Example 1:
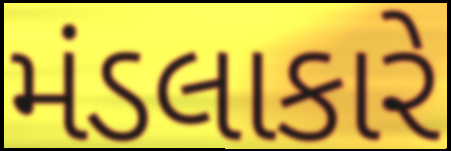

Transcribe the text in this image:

મંડલાકારે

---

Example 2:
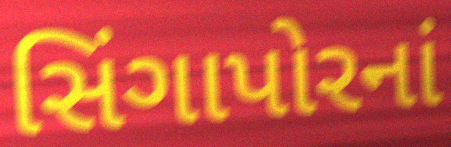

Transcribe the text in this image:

સિંગાપોરનાં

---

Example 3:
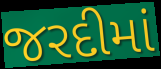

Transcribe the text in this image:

જરદીમાં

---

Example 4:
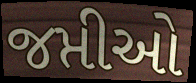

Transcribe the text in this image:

જપ્તીઓ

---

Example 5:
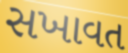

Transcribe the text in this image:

સખાવત